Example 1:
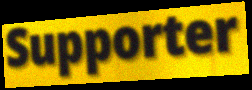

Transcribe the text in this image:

Supporter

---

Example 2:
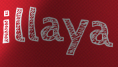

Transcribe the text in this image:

illaya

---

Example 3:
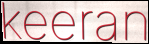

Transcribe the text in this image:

keeran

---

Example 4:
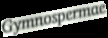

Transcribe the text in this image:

Gymnospermae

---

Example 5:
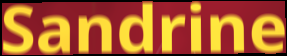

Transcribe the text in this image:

Sandrine